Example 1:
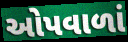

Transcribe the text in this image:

ઓપવાળાં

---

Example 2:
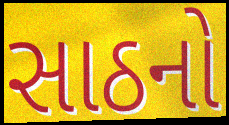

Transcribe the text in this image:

સાઠનો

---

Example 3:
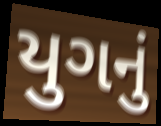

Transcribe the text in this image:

યુગનું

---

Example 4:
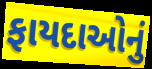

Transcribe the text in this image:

ફાયદાઓનું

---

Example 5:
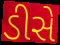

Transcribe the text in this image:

ડીસે